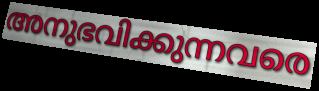
അനുഭവിക്കുന്നവരെ